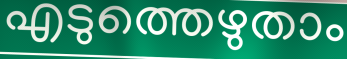
എടുത്തെഴുതാം